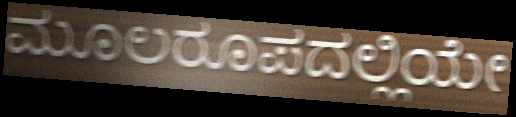
ಮೂಲರೂಪದಲ್ಲಿಯೇ